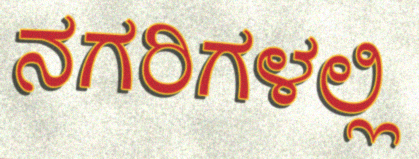
ನಗರಿಗಳಲ್ಲಿ